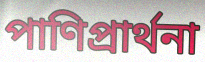
পাণিপ্রার্থনা